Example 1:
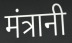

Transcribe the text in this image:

मंत्रानी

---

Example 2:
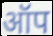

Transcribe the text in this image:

ऑप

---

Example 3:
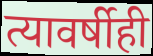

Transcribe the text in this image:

त्यावर्षीही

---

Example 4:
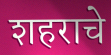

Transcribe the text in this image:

शहराचे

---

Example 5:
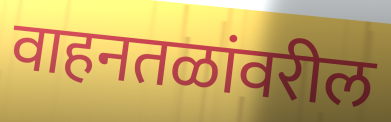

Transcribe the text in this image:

वाहनतळांवरील